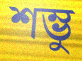
শম্ভু